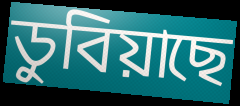
ডুবিয়াছে